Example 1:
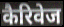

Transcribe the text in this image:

कैरिवेज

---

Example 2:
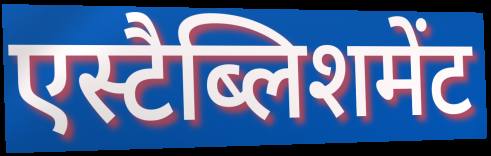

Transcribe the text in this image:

एस्टैब्लिशमेंट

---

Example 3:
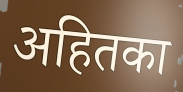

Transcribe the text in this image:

अहितका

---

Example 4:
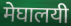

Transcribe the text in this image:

मेघालयी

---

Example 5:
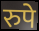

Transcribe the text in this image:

रुपे